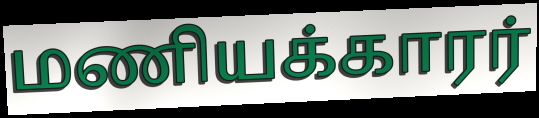
மணியக்காரர்